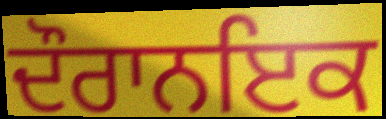
ਦੌਰਾਨਇਕ